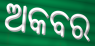
ଅକବର